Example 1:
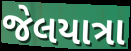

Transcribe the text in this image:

જેલયાત્રા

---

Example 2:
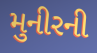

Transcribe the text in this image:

મુનીરની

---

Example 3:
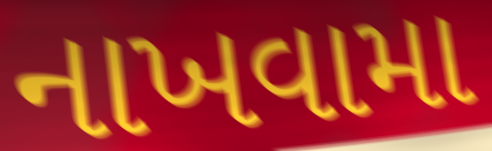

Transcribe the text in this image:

નાખવામા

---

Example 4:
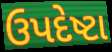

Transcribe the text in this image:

ઉપદેષ્ટા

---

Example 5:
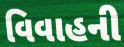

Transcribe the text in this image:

વિવાહની